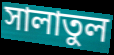
সালাতুল